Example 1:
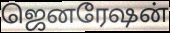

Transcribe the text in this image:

ஜெனரேஷன்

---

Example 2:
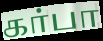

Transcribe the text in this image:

கர்பா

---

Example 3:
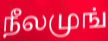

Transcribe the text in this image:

நீலமுங்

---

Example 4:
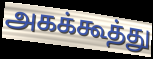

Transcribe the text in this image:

அகக்கூத்து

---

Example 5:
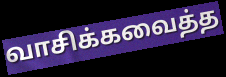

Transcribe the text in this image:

வாசிக்கவைத்த